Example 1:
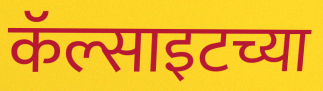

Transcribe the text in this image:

कॅल्साइटच्या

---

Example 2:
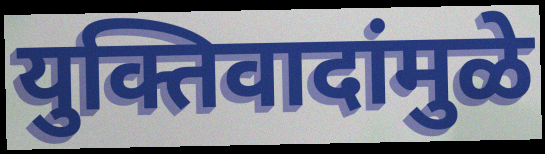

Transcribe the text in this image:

युक्तिवादांमुळे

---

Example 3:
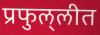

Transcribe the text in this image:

प्रफुल्लीत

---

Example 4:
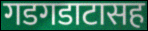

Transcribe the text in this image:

गडगडाटासह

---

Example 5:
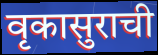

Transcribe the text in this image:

वृकासुराची